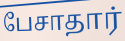
பேசாதார்